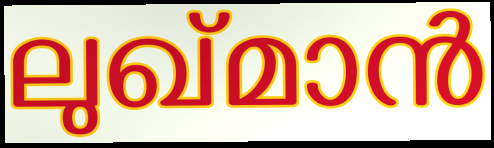
ലുഖ്മാൻ